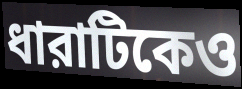
ধারাটিকেও